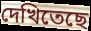
দেখিতেছে